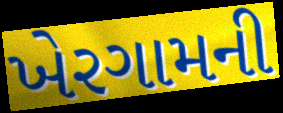
ખેરગામની